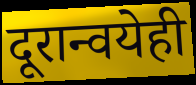
दूरान्वयेही